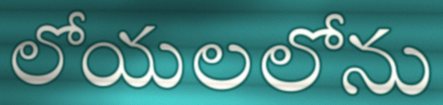
లోయలలోను